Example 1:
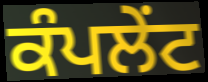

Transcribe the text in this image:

ਕੰਪਲੇਂਟ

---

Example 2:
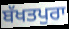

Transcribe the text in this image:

ਬੱਖਤਪੁਰਾ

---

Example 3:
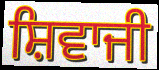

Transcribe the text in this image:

ਸ਼ਿਵਾਜੀ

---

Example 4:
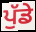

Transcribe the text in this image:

ਪੁੱਡੇ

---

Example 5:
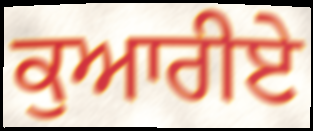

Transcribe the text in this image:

ਕੁਆਰੀਏ